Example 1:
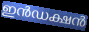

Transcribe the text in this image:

ഇൻഡക്ഷൻ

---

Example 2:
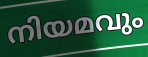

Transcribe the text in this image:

നിയമവും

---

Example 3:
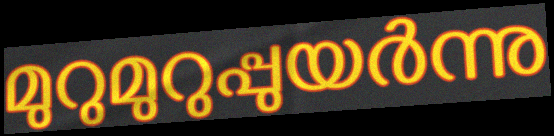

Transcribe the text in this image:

മുറുമുറുപ്പുയർന്നു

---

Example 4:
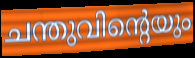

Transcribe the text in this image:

ചന്തുവിന്റെയും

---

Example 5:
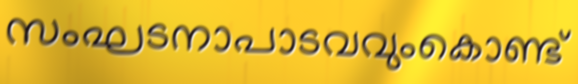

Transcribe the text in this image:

സംഘടനാപാടവവുംകൊണ്ട്